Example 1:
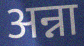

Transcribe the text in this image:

अन्ना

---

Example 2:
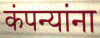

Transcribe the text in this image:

कंपन्यांना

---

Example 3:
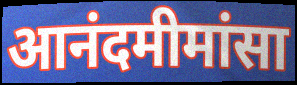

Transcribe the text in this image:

आनंदमीमांसा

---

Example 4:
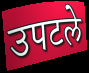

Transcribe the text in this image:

उपटले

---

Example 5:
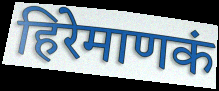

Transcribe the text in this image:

हिरेमाणकं